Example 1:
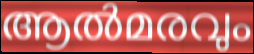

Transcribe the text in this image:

ആൽമരവും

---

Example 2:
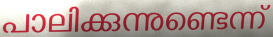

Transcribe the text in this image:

പാലിക്കുന്നുണ്ടെന്ന്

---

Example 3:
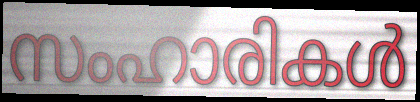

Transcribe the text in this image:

സംഹാരികൾ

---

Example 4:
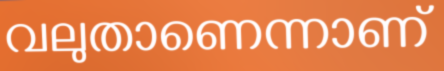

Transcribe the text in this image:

വലുതാണെന്നാണ്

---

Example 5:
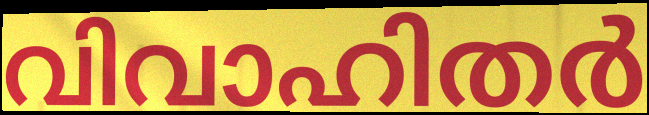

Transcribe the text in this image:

വിവാഹിതർ